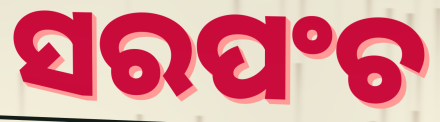
ସରପଂଚ